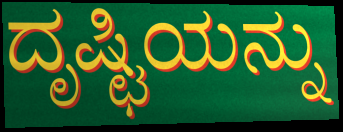
ದೃಷ್ಟಿಯನ್ನು